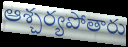
ఆశ్చర్యపోతారు